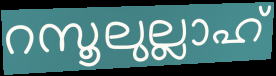
റസൂലുല്ലാഹ്